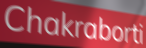
Chakraborti